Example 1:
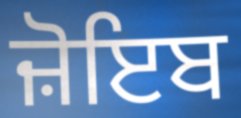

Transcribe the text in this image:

ਜ਼ੋਇਬ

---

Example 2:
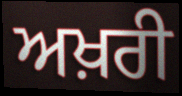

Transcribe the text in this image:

ਅਖ਼ਰੀ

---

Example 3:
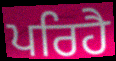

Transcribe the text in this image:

ਪਰਿਹੈ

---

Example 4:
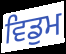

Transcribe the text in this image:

ਵਿਡੁਮ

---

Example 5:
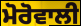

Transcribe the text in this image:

ਮੋਰੋਵਾਲੀ